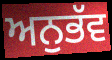
ਅਨੁਭੱਵ